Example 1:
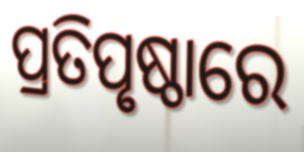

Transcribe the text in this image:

ପ୍ରତିପୃଷ୍ଠାରେ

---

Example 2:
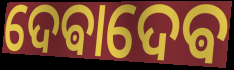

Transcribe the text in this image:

ଦେଵାଦେଵ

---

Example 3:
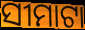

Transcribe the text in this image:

ସୀମାଟା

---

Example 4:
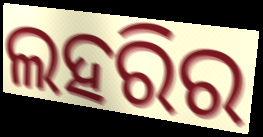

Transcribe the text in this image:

ଲହରିର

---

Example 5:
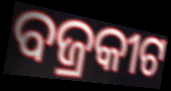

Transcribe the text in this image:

ବଜ୍ରକୀଟ